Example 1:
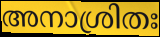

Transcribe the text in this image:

അനാശ്രിതഃ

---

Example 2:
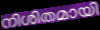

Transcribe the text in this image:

നിശിതമായി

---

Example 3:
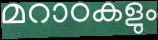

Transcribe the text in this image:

മറാഠകളും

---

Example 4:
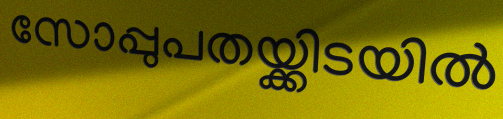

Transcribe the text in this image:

സോപ്പുപതയ്ക്കിടയിൽ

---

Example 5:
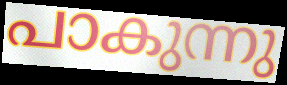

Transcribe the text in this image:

പാകുന്നു